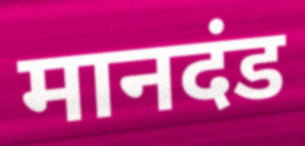
मानदंड